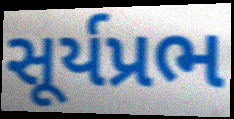
સૂર્યપ્રભ